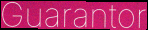
Guarantor